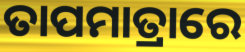
ତାପମାତ୍ରାରେ